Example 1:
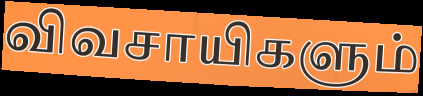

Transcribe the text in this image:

விவசாயிகளும்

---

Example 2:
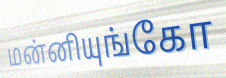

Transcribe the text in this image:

மன்னியுங்கோ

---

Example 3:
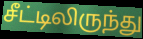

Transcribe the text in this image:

சீட்டிலிருந்து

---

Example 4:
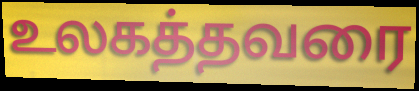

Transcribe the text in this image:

உலகத்தவரை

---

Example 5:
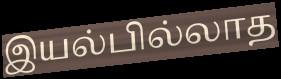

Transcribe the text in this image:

இயல்பில்லாத